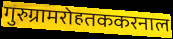
गुरुग्रामरोहतककरनाल